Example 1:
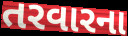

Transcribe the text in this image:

તરવારના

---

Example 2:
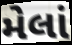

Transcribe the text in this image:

મેલાં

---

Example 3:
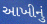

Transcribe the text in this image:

આખીનું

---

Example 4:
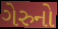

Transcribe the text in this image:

ગેરુનો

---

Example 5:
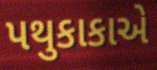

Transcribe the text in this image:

પથુકાકાએ